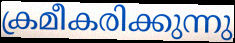
ക്രമീകരിക്കുന്നു